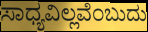
ಸಾಧ್ಯವಿಲ್ಲವೆಂಬುದು